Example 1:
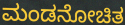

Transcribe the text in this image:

ಮಂಡನೋಚಿತ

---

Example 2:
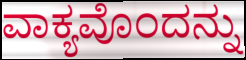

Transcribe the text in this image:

ವಾಕ್ಯವೊಂದನ್ನು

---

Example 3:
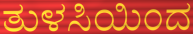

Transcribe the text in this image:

ತುಳಸಿಯಿಂದ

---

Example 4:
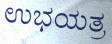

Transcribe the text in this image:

ಉಭಯತ್ರ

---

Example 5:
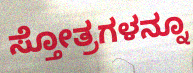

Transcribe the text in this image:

ಸ್ತೋತ್ರಗಳನ್ನೂ